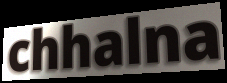
chhalna